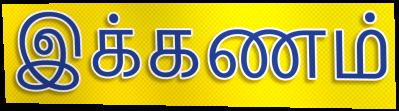
இக்கணம்